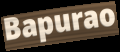
Bapurao